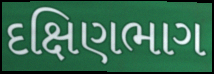
દક્ષિણભાગ